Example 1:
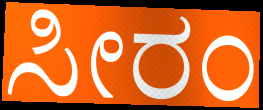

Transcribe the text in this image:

ಸೀರಂ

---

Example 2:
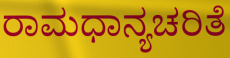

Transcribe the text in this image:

ರಾಮಧಾನ್ಯಚರಿತೆ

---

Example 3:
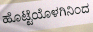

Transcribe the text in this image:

ಹೊಟ್ಟೆಯೊಳಗಿನಿಂದ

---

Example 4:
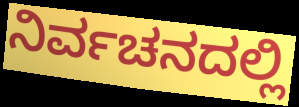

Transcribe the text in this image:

ನಿರ್ವಚನದಲ್ಲಿ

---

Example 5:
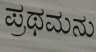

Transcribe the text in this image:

ಪ್ರಥಮನು